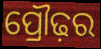
ପ୍ରୌଢ଼ର